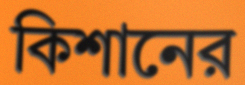
কিশানের